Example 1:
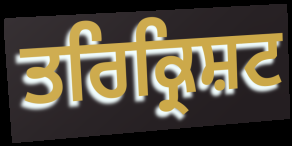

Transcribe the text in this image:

ਤਰਿਕ੍ਰਿਸ਼ਟ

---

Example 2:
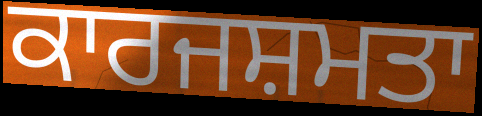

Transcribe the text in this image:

ਕਾਰਜਸ਼ਮਤਾ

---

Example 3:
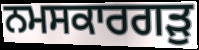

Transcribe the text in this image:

ਨਮਸਕਾਰਗੜੁ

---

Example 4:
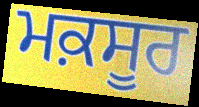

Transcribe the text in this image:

ਮਕ਼ਸੂਰ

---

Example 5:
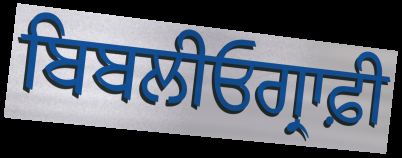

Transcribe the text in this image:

ਬਿਬਲੀਓਗ੍ਰਾਫ਼ੀ